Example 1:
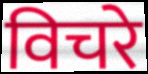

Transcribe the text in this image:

विचरे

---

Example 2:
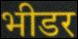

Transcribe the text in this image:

भीडर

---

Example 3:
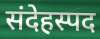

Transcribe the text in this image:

संदेहस्पद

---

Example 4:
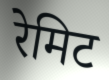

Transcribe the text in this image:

रेमिट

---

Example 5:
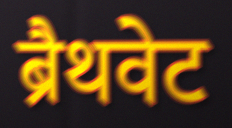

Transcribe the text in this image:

ब्रैथवेट